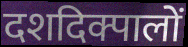
दशदिक्पालों